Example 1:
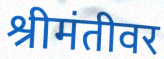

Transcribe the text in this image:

श्रीमंतीवर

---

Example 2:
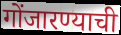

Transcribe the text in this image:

गोंजारण्याची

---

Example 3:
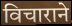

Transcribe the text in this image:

विचाराने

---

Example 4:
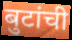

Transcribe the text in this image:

बुटांची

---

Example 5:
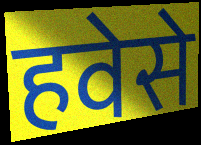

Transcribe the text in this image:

हवेसे